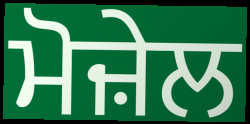
ਮੋਜ਼ੇਲ